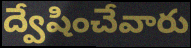
ద్వేషించేవారు